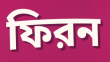
ফিরন